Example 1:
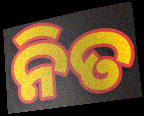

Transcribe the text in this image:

ନିତ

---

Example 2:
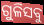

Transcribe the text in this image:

ଗୁଳିସବୁ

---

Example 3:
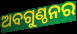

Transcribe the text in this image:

ଅବଗୁଣ୍ଠନର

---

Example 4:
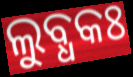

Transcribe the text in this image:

ଲୁବ୍ଧକଃ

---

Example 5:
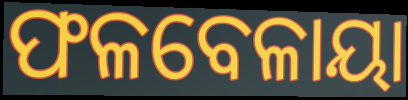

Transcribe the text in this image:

ଫଳବେଳାୟା